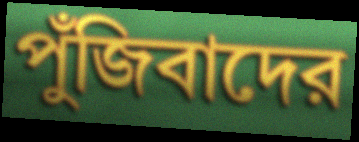
পুঁজিবাদের